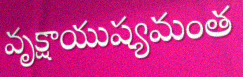
వృక్షాయుష్యమంత